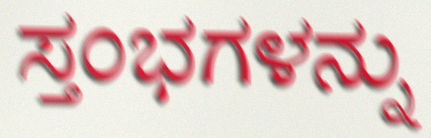
ಸ್ತಂಭಗಳನ್ನು